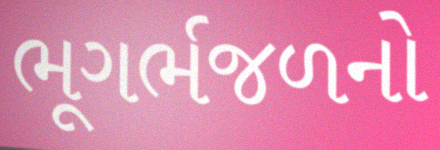
ભૂગર્ભજળનો